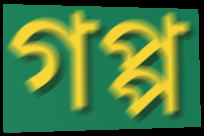
গপ্প